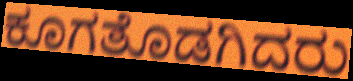
ಕೂಗತೊಡಗಿದರು